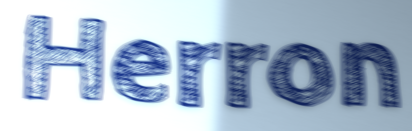
Herron